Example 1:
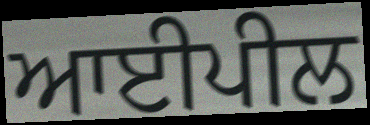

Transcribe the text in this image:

ਆਈਪੀਲ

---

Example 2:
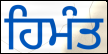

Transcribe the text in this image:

ਹਿਮੰਤ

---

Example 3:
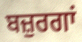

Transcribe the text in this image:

ਬਜ਼ੁਰਗਾਂ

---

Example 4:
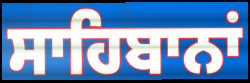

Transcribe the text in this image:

ਸਾਹਿਬਾਨਾਂ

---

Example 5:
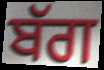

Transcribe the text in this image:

ਬੱਗ